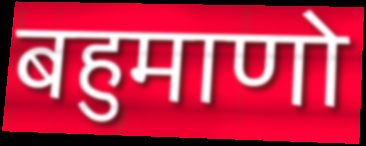
बहुमाणो